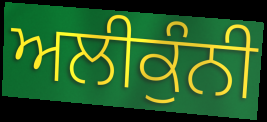
ਅਲੀਕੁੰਨੀ